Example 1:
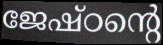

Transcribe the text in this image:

ജേഷ്ഠന്റെ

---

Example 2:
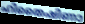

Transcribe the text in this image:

ഹിതൈഷിണാ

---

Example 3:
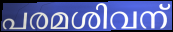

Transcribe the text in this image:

പരമശിവന്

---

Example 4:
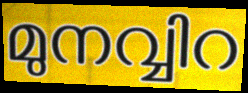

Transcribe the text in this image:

മുനവ്വിറ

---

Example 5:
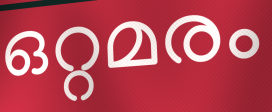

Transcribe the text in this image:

ഒറ്റമരം